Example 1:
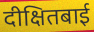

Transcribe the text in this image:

दीक्षितबाई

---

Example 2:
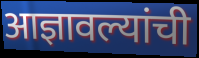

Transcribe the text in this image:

आज्ञावल्यांची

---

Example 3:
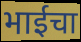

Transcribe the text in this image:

भाईचा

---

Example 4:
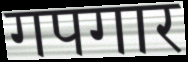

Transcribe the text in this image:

गपगार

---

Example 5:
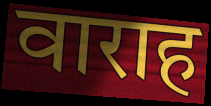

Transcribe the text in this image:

वाराह